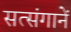
सत्संगानें